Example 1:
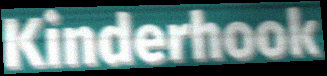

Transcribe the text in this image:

Kinderhook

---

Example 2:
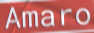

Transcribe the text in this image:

Amaro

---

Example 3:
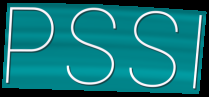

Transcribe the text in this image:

PSSI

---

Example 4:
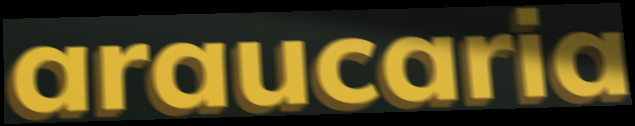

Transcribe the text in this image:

araucaria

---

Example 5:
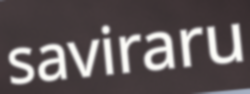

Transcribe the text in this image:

saviraru